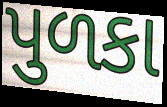
પુળકા